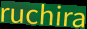
ruchira